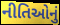
નીતિઓનું